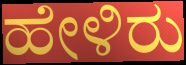
ಹೇಳಿರು